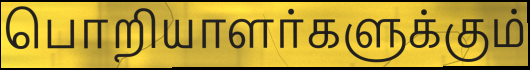
பொறியாளர்களுக்கும்